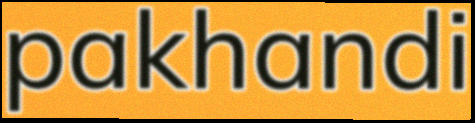
pakhandi